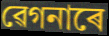
ৱেগনাৰে